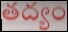
తద్యం